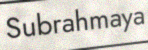
Subrahmaya